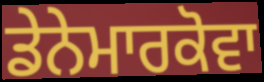
ਡੇਨੇਮਾਰਕੋਵਾ